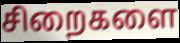
சிறைகளை